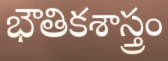
భౌతికశాస్త్రం